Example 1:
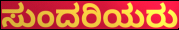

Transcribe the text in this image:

ಸುಂದರಿಯರು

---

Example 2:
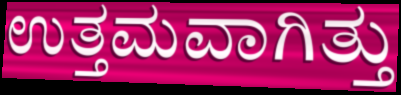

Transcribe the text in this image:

ಉತ್ತಮವಾಗಿತ್ತು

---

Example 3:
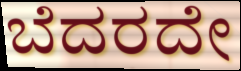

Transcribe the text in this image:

ಬೆದರದೇ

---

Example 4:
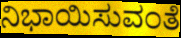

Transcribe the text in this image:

ನಿಭಾಯಿಸುವಂತೆ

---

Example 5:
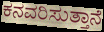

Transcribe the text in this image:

ಕನವರಿಸುತ್ತಾನೆ